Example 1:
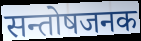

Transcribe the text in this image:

सन्तोषजनक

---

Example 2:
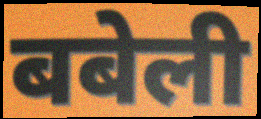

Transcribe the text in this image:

बबेली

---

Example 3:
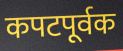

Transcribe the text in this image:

कपटपूर्वक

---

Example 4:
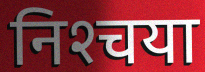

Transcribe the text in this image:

निश्चया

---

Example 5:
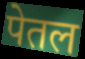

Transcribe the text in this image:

पेतल